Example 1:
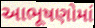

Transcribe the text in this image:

આભૂષણોમાં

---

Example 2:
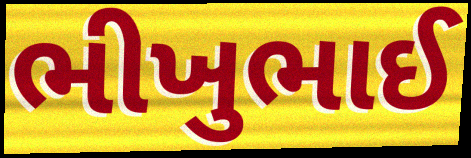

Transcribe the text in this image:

ભીખુભાઈ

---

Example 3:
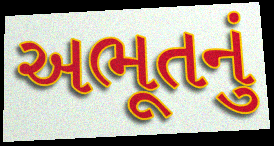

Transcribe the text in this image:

અભૂતનું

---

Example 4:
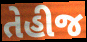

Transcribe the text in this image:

તેહીજ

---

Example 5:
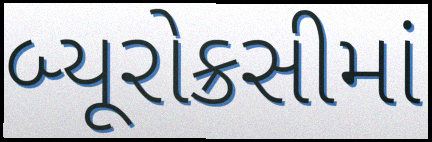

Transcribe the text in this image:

બ્યૂરોક્રસીમાં